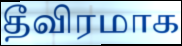
தீவிரமாக